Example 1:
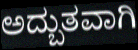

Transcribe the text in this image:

ಅದ್ಬುತವಾಗಿ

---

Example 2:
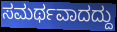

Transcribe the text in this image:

ಸಮರ್ಥವಾದದ್ದು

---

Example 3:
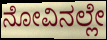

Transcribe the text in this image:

ನೋವಿನಲ್ಲೇ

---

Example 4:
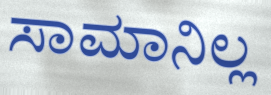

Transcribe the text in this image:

ಸಾಮಾನಿಲ್ಲ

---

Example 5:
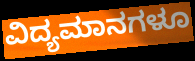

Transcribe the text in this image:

ವಿದ್ಯಮಾನಗಳೂ